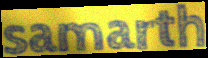
samarth